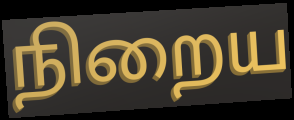
நிறைய